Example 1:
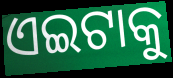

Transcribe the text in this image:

ଏଇଟାକୁ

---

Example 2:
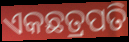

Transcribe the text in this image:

ଏକଛତ୍ରପତି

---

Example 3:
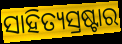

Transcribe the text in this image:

ସାହିତ୍ୟସ୍ରଷ୍ଟାର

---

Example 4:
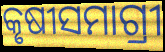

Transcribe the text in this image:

କୃଷୀସମାଗ୍ରୀ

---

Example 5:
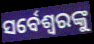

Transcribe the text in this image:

ସର୍ବେଶ୍ୱରଙ୍କୁ